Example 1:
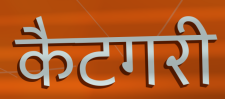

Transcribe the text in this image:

कैटगरी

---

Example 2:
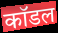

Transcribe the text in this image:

कॉडल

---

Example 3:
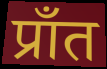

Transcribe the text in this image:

प्राँत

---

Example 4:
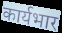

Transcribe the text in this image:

कार्यभार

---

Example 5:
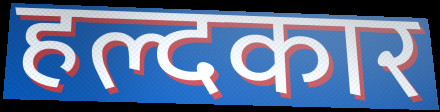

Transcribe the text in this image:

हल्दकार